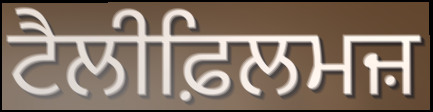
ਟੈਲੀਫ਼ਿਲਮਜ਼